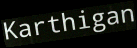
Karthigan